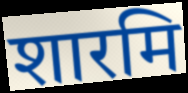
शारमि